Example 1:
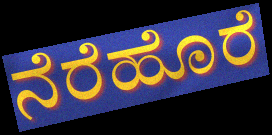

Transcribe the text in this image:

ನೆರೆಹೊರೆ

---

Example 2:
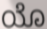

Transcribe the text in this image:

ಯೊ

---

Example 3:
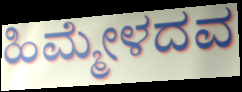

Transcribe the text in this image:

ಹಿಮ್ಮೇಳದವ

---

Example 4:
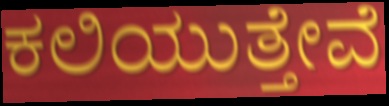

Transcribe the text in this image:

ಕಲಿಯುತ್ತೇವೆ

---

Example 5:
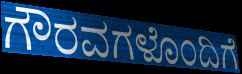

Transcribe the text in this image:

ಗೌರವಗಳೊಂದಿಗೆ